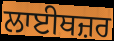
ਲਾਈਥਜ਼ਰ